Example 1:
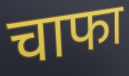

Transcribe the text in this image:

चाफा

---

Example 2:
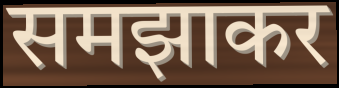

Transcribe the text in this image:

समझाकर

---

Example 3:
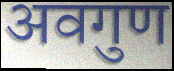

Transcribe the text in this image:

अवगुण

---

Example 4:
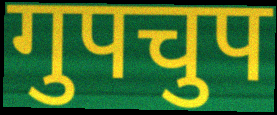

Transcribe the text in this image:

गुपचुप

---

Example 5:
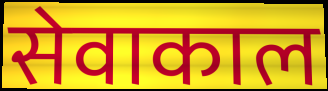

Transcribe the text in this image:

सेवाकाल